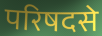
परिषदसे